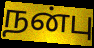
நன்பு